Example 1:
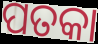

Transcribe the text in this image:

ପତକା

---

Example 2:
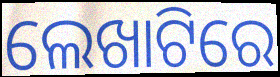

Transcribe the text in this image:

ଲେଖାଟିରେ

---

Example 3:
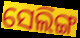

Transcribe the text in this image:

ସେଲିଙ୍ଗ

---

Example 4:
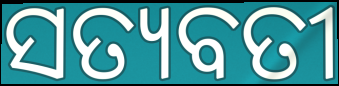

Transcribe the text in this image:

ସତ୍ୟବତୀ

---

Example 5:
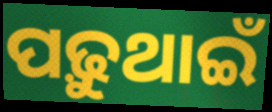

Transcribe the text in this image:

ପଢ଼ୁଥାଇଁ